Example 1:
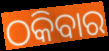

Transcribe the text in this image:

ଠକିବାର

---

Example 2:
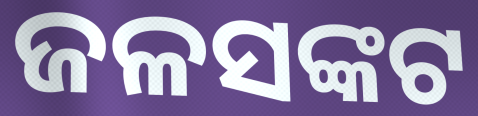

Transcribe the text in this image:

ଜଳସଙ୍କଟ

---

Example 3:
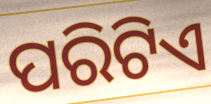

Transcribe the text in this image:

ପରିଟିଏ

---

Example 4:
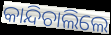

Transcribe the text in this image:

କାନ୍ଦିଚାଲିଲେ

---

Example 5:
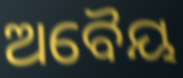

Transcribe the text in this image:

ଅବୈୟ